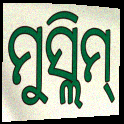
ମୁସ୍ଲିମ୍